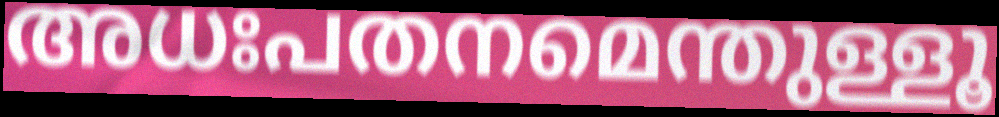
അധഃപതനമെന്തുള്ളൂ